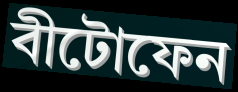
বীটোফেন